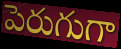
పెరుగుగా